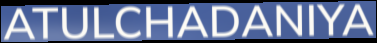
ATULCHADANIYA